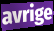
avrige